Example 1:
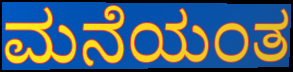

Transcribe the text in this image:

ಮನೆಯಂತ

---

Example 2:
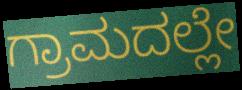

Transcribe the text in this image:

ಗ್ರಾಮದಲ್ಲೇ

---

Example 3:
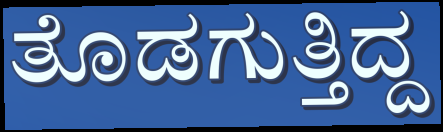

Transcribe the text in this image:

ತೊಡಗುತ್ತಿದ್ದ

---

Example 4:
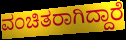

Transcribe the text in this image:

ವಂಚಿತರಾಗಿದ್ದಾರೆ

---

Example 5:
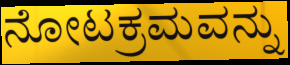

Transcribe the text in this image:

ನೋಟಕ್ರಮವನ್ನು